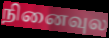
நினைவுல